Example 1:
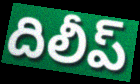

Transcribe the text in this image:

దిలీప్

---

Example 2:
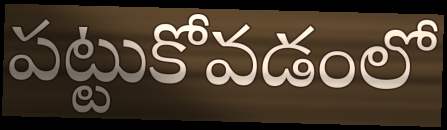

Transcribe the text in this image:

పట్టుకోవడంలో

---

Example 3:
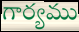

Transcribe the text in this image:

గార్యము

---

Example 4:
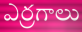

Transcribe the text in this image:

ఎర్రగాలు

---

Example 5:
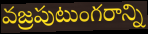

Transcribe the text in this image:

వజ్రపుటుంగరాన్ని